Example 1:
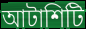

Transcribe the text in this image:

আটাশিটি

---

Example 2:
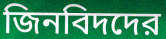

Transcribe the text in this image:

জিনবিদদের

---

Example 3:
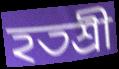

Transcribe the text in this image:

হতশ্রী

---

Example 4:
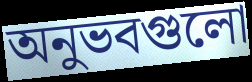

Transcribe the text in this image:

অনুভবগুলো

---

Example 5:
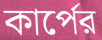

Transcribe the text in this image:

কার্পের